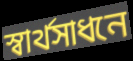
স্বার্থসাধনে